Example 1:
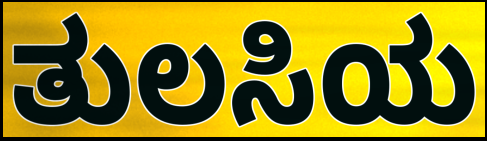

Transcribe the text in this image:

ತುಲಸಿಯ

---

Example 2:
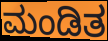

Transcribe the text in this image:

ಮಂಡಿತ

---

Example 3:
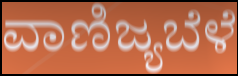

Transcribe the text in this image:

ವಾಣಿಜ್ಯಬೆಳೆ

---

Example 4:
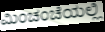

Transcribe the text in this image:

ಮಿಂಚಂಚೆಯಲ್ಲಿ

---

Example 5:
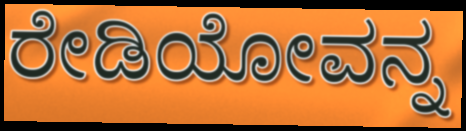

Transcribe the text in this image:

ರೇಡಿಯೋವನ್ನ